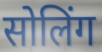
सोलिंग